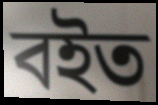
বইত